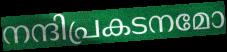
നന്ദിപ്രകടനമോ